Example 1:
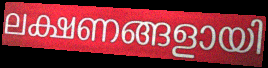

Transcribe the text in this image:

ലക്ഷണങ്ങളായി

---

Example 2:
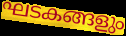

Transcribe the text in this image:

ഘടകങ്ങളും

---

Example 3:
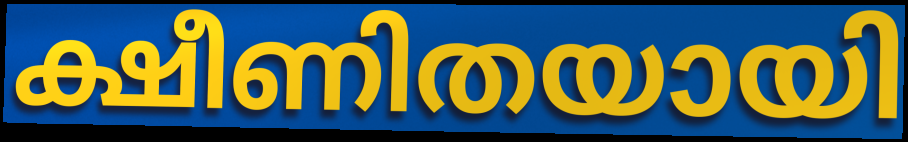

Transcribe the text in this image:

ക്ഷീണിതയായി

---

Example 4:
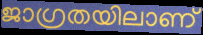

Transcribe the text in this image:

ജാഗ്രതയിലാണ്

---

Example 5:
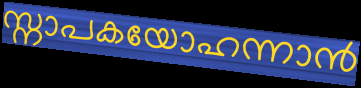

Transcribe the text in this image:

സ്നാപകയോഹന്നാൻ